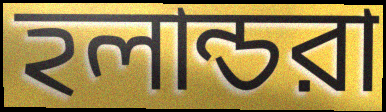
হলান্ডরা